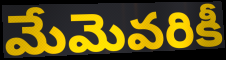
మేమెవరికీ